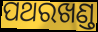
ପଥରଖଣ୍ଡ